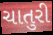
ચાતુરી